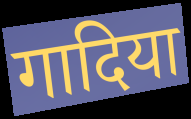
गादिया